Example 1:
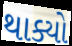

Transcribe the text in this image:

થાક્યો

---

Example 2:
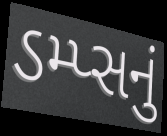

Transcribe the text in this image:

ડમ્પ્સનું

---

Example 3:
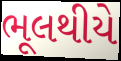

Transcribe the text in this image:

ભૂલથીયે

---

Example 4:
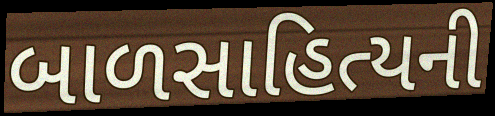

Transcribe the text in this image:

બાળસાહિત્યની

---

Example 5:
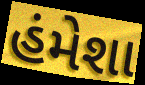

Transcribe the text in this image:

હંમેશા